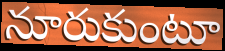
నూరుకుంటూ